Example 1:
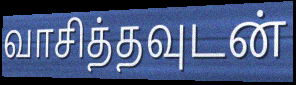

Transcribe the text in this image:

வாசித்தவுடன்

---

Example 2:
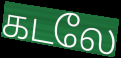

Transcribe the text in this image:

கடலே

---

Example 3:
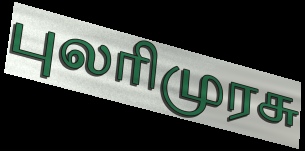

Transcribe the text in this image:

புலரிமுரசு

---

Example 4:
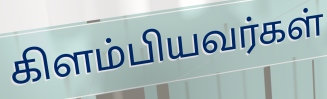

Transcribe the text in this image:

கிளம்பியவர்கள்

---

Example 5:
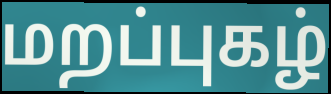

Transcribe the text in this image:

மறப்புகழ்